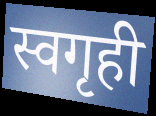
स्वगृही